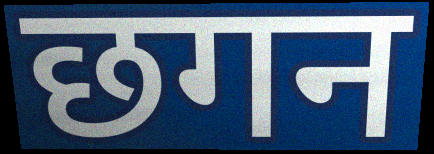
छगन